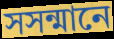
সসন্মানে